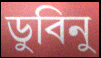
ডুবিনু